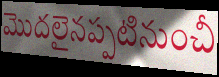
మొదలైనప్పటినుంచీ